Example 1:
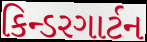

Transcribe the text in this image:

કિન્ડરગાર્ટન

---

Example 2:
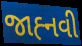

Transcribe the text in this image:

જાહ્‍નવી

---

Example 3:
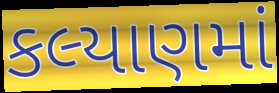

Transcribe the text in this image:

કલ્યાણમાં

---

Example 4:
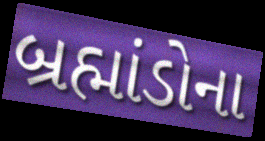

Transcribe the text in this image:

બ્રહ્માંડોના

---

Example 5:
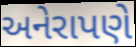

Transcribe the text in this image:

અનેરાપણે